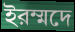
ইরম্মদে